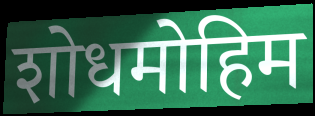
शोधमोहिम